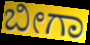
ಬೀಗಾ